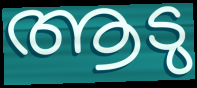
ആടു